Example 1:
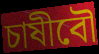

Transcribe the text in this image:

চাষীবৌ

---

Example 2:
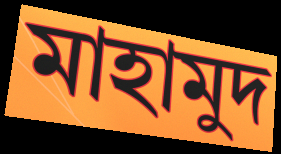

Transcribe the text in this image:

মাহামুদ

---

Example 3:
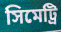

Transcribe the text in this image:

সিমেট্রি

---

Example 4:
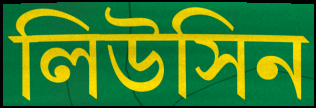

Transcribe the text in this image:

লিউসিন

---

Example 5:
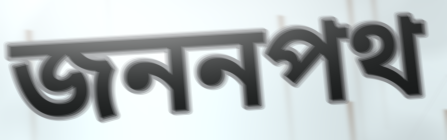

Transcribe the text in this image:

জননপথ